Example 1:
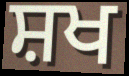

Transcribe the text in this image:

ਸ਼ਖ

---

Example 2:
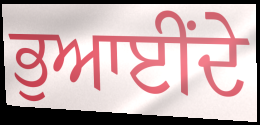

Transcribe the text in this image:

ਭੁਆਈਂਦੇ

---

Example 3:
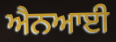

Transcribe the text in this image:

ਐਨਆਈ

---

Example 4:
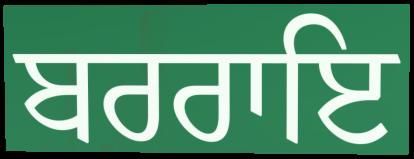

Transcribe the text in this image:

ਬਰਰਾਇ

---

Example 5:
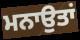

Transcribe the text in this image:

ਮਨਾਉਤਾਂ